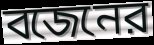
বজেনের